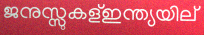
ജനുസ്സുകള്ഇന്ത്യയില്